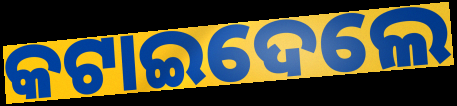
କଟାଇଦେଲେ